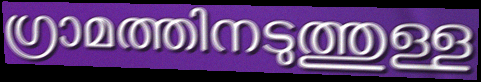
ഗ്രാമത്തിനടുത്തുള്ള